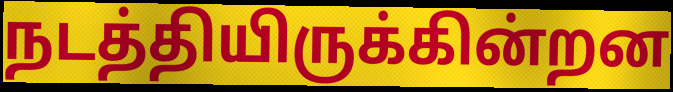
நடத்தியிருக்கின்றன